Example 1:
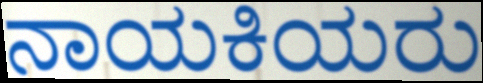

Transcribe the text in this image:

ನಾಯಕಿಯರು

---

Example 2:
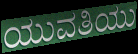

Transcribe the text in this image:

ಯುವತಿಯು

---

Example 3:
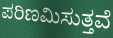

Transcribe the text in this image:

ಪರಿಣಮಿಸುತ್ತವೆ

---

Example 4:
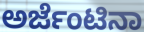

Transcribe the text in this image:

ಅರ್ಜೆಂಟಿನಾ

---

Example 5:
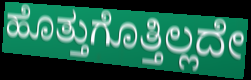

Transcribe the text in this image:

ಹೊತ್ತುಗೊತ್ತಿಲ್ಲದೇ